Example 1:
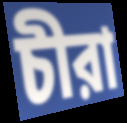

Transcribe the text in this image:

চীরা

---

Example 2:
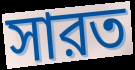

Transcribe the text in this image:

সারত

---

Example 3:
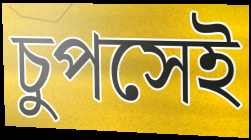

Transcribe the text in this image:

চুপসেই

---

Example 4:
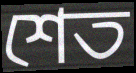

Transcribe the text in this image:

শেত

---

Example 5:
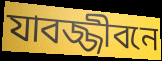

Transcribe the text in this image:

যাবজ্জীবনে